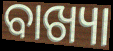
ବାଖ୍ୟା